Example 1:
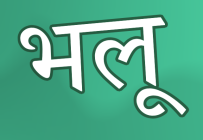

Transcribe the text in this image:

भलू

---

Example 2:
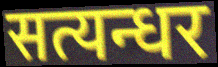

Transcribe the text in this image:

सत्यन्धर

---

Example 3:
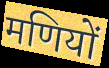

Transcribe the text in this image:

मणियों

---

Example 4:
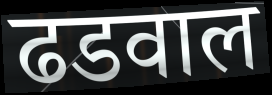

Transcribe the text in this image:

ढडवाल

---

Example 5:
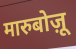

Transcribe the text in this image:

मारुबोज़ू